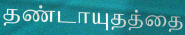
தண்டாயுதத்தை